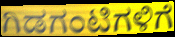
ಗಿಡಗಂಟಿಗಳಿಗೆ